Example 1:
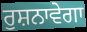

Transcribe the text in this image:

ਰੁਸ਼ਨਾਵੇਗਾ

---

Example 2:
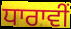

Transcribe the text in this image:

ਧਾਰਾਵੀਂ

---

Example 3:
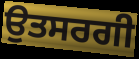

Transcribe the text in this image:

ਉਤਸਰਗੀ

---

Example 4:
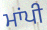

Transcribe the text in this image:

ਮਾਂਪੀ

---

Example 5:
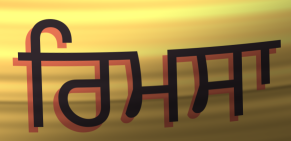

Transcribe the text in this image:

ਰਿਮਸਾ